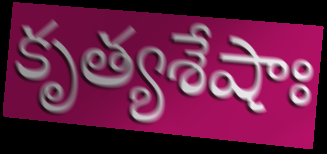
కృత్యశేషాః